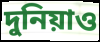
দুনিয়াও